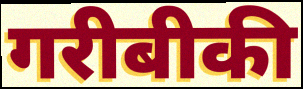
गरीबीकी